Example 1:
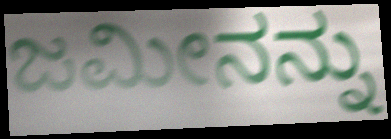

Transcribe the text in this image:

ಜಮೀನನ್ನು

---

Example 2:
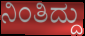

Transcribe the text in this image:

ನಿಂತಿದ್ದು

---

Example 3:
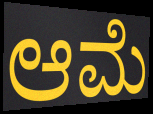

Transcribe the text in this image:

ಆಮೆ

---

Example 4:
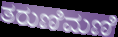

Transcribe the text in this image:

ತರುಣಿಮಣಿ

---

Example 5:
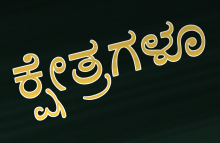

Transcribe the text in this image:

ಕ್ಷೇತ್ರಗಳೂ